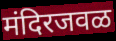
मंदिरजवळ